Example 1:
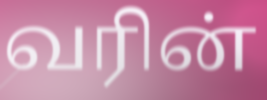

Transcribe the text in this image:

வரின்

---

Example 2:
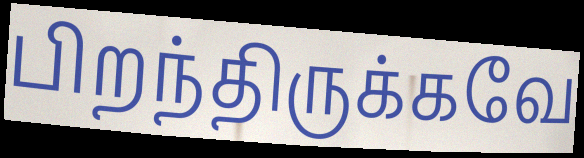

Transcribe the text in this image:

பிறந்திருக்கவே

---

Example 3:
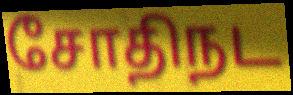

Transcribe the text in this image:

சோதிநட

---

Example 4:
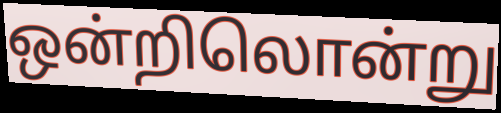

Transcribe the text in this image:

ஒன்றிலொன்று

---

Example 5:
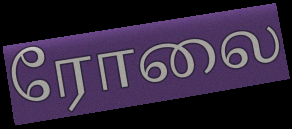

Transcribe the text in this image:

ரோலை